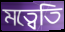
মত্বেতি